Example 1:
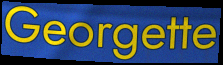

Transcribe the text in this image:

Georgette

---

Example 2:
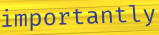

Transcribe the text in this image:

importantly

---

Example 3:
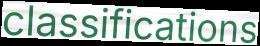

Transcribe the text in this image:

classifications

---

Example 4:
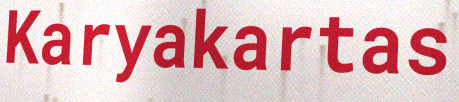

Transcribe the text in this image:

Karyakartas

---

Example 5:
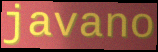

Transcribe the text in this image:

javano